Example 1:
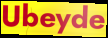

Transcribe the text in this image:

Ubeyde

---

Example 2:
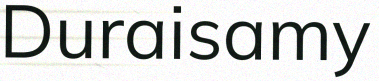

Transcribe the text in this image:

Duraisamy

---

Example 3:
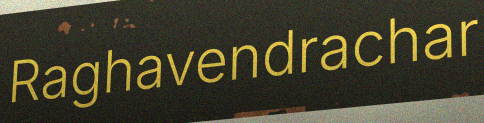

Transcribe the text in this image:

Raghavendrachar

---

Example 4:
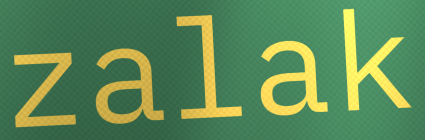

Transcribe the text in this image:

zalak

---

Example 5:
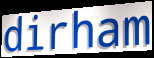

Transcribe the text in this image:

dirham